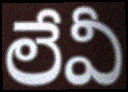
లేవీ